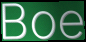
Boe